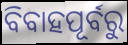
ବିବାହପୂର୍ବରୁ